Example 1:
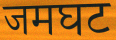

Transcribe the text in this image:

जमघट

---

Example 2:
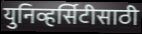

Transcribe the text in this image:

युनिव्हर्सिटीसाठी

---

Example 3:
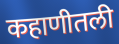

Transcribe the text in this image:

कहाणीतली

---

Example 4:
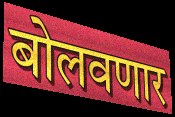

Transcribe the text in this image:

बोलवणार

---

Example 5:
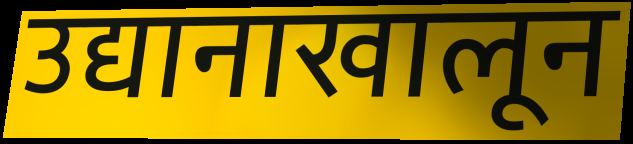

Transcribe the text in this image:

उद्यानाखालून